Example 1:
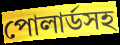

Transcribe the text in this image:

পোলার্ডসহ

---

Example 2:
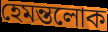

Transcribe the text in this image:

হেমন্তলোক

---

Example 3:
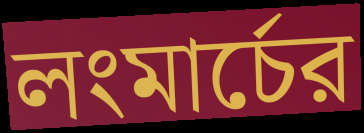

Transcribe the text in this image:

লংমার্চের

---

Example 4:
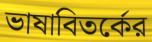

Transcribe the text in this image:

ভাষাবিতর্কের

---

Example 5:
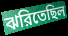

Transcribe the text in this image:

ঝরিতেছিল